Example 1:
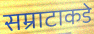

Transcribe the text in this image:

सम्राटाकडे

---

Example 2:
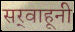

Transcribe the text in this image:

सर्वाहूनी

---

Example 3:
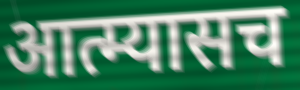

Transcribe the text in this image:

आत्म्यासच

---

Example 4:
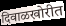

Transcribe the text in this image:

दिवाळखोरीत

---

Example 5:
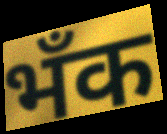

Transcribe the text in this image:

भँक